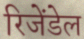
रिजेंडेल